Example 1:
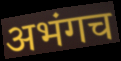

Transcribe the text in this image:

अभंगच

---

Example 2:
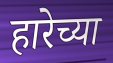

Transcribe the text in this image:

हारेच्या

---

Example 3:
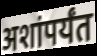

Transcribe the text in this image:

अशांपर्यंत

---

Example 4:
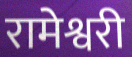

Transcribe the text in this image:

रामेश्वरी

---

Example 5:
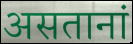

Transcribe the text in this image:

असतानां